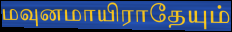
மவுனமாயிராதேயும்